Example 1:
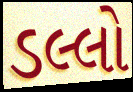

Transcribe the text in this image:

ડલ્લો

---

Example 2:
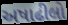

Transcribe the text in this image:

અષાઢીલો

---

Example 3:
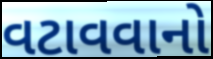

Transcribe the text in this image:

વટાવવાનો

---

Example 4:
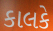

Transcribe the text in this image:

કાલકે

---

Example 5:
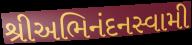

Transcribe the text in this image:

શ્રીઅભિનંદનસ્વામી